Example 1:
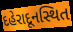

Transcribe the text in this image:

દહેરાદૂનસ્થિત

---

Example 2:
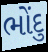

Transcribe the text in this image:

ભોંદુ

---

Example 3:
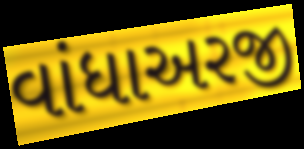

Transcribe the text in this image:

વાંધાઅરજી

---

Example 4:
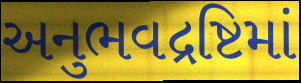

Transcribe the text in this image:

અનુભવદ્રષ્ટિમાં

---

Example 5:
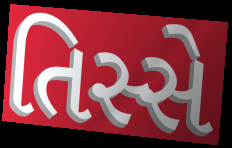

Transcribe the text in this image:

તિસ્સે